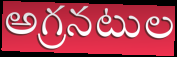
అగ్రనటుల